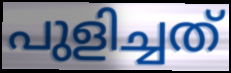
പുളിച്ചത്